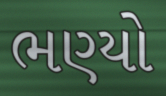
ભણ્યો